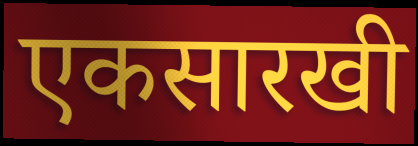
एकसारखी